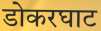
डोकरघाट